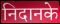
निदानके